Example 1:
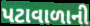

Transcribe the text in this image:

પટાવાળાની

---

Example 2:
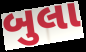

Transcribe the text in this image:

બુલા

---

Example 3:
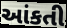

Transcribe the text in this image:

આંકતી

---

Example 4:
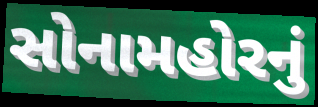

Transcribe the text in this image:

સોનામહોરનું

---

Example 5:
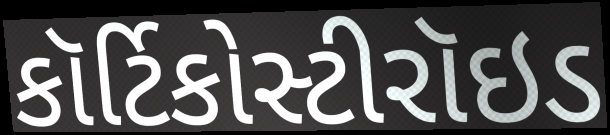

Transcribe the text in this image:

કૉર્ટિકોસ્ટીરૉઇડ